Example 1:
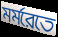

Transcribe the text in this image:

মর্মরেতে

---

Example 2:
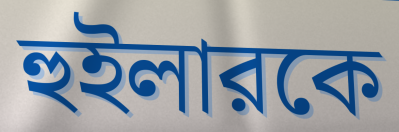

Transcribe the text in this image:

হুইলারকে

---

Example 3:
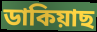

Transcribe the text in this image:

ডাকিয়াছ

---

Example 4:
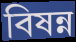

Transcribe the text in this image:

বিষন্ন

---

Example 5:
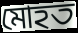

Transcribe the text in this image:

মোহত